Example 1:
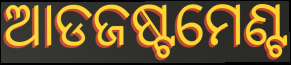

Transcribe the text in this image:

ଆଡଜଷ୍ଟମେଣ୍ଟ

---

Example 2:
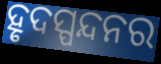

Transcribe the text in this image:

ହୃଦସ୍ପନ୍ଦନର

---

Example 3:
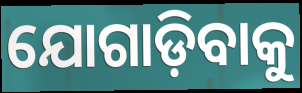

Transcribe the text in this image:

ଯୋଗାଡ଼ିବାକୁ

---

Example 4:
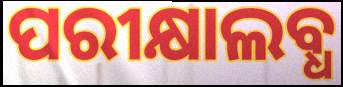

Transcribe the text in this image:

ପରୀକ୍ଷାଲବ୍ଧ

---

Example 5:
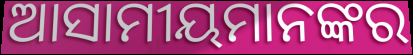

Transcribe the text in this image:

ଆସାମୀୟମାନଙ୍କର